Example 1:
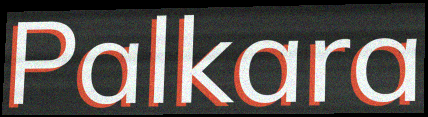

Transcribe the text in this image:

Palkara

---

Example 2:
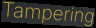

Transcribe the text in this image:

Tampering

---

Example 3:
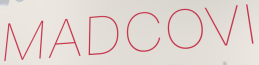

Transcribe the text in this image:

MADCOVI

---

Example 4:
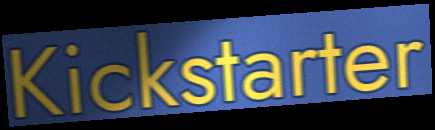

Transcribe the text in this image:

Kickstarter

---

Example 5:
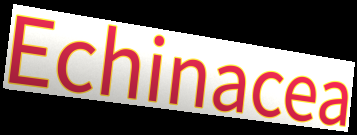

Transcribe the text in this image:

Echinacea